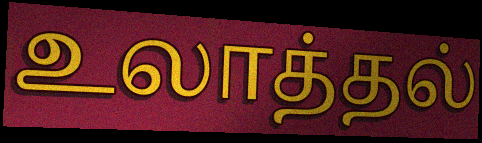
உலாத்தல்